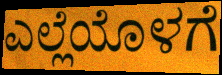
ಎಲ್ಲೆಯೊಳಗೆ